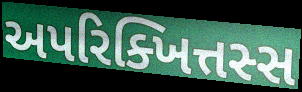
અપરિક્ખિત્તસ્સ